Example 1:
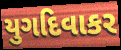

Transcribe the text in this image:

યુગદિવાકર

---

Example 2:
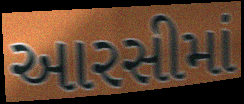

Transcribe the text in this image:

આરસીમાં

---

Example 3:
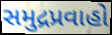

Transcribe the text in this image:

સમુદ્રપ્રવાહો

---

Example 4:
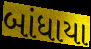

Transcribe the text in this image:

બાંધાયા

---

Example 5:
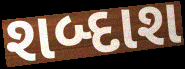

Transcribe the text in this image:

શબ્દાશ